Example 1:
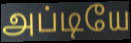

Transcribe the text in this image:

அப்டியே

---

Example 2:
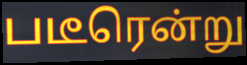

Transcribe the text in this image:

படீரென்று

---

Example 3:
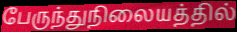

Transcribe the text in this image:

பேருந்துநிலையத்தில்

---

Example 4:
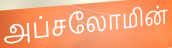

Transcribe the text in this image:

அப்சலோமின்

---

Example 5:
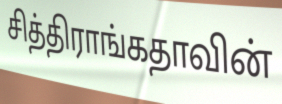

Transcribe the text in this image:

சித்திராங்கதாவின்